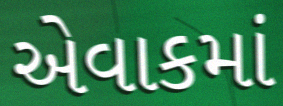
એવાકમાં